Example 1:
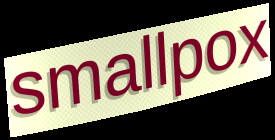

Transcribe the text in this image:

smallpox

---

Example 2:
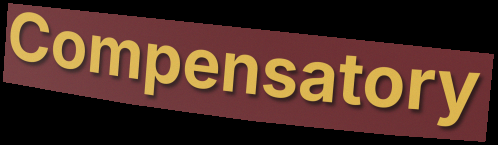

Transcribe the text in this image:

Compensatory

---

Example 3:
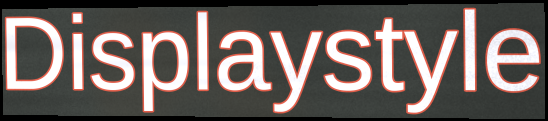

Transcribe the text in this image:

Displaystyle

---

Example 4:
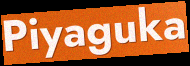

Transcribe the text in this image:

Piyaguka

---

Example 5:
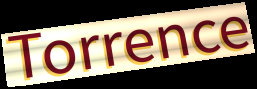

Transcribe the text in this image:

Torrence